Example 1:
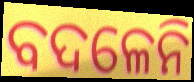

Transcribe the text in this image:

ବଦଳେନି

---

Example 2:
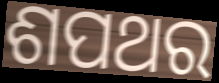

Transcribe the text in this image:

ଶପଥର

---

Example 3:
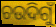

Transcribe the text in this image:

ଚଉଦିଗୁଁ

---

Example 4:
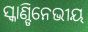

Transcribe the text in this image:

ସ୍କାଣ୍ଡିନେଭୀୟ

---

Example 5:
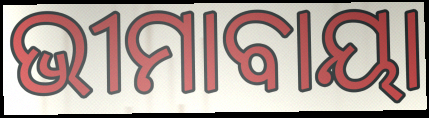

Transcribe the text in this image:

ଭୀମାବାୟା